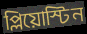
প্লিয়োস্টিন